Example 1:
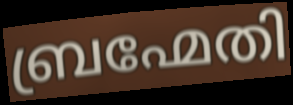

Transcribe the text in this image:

ബ്രഹ്മേതി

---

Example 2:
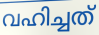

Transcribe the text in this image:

വഹിച്ചത്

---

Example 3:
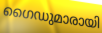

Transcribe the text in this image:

ഗൈഡുമാരായി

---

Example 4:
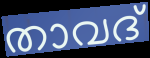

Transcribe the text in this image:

താവദ്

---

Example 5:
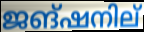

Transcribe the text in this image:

ജങ്ഷനില്